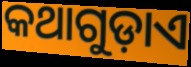
କଥାଗୁଡ଼ାଏ